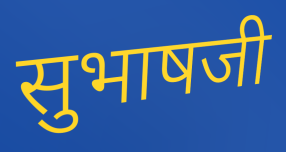
सुभाषजी